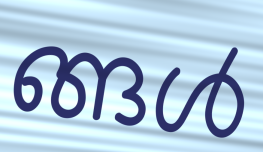
ങ്ങൾ